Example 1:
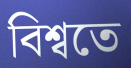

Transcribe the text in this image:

বিশ্বতে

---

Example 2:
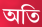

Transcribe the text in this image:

অতি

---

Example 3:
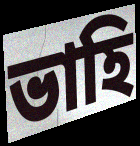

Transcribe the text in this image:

ভাহি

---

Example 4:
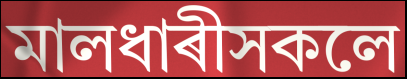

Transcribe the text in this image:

মালধাৰীসকলে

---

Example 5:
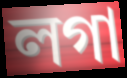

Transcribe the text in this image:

লগা